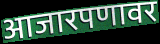
आजारपणावर